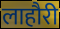
लाहौरी